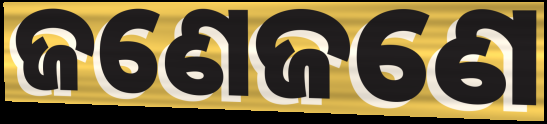
ଜଣେଜଣେ